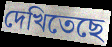
দেখিতেছে